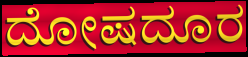
ದೋಷದೂರ